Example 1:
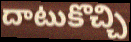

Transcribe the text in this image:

దాటుకొచ్చి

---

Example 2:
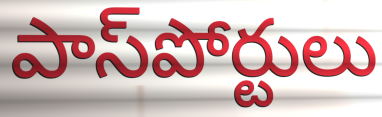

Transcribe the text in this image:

పాస్‌పోర్టులు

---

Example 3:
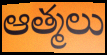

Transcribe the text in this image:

ఆత్మలు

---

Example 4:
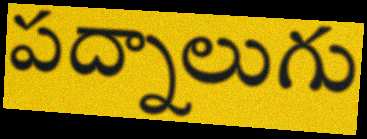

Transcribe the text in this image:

పద్నాలుగు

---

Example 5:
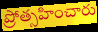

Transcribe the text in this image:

ప్రోత్సహించారు